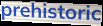
prehistoric